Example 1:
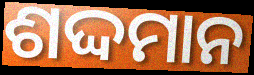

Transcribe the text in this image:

ଶଦ୍ଦମାନ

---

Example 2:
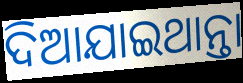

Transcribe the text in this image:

ଦିଆଯାଇଥାନ୍ତା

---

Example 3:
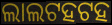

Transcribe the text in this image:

ଲାଲଟହଟହ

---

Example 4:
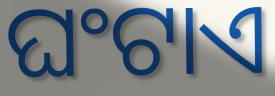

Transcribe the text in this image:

ଘଂଟାଏ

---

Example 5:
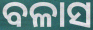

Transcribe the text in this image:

ବଳାସ